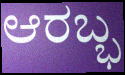
ಆರಬ್ಭ